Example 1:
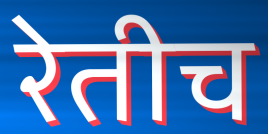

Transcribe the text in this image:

रेतीच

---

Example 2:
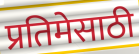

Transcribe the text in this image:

प्रतिमेसाठी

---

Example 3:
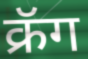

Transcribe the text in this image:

क्रॅग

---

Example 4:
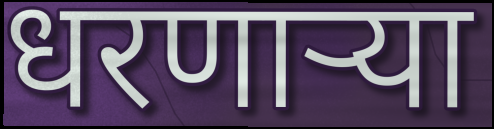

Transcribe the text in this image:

धरणाऱ्या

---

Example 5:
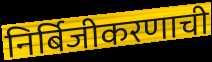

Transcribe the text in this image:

निर्बिजीकरणाची